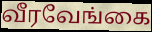
வீரவேங்கை